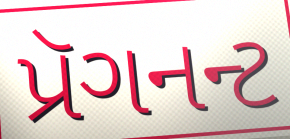
પ્રૅગનન્ટ